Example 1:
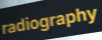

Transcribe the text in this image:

radiography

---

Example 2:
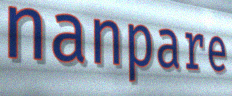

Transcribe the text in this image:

nanpare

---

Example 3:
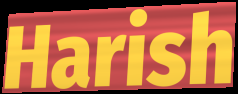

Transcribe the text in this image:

Harish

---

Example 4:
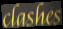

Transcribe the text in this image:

clashes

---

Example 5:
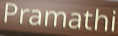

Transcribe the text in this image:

Pramathi